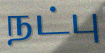
நட்பு